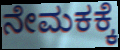
ನೇಮಕಕ್ಕೆ